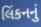
લિંકનનું